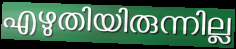
എഴുതിയിരുന്നില്ല